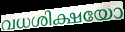
വധശിക്ഷയോ